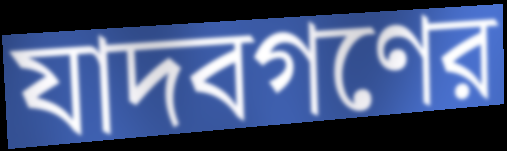
যাদবগণের